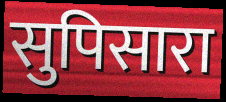
सुपिसारा